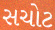
સચોટ